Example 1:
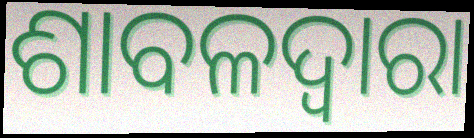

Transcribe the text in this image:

ଶାବଳଦ୍ୱାରା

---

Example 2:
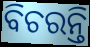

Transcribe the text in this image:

ବିଚରନ୍ତି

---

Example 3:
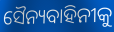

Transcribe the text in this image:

ସୈନ୍ୟବାହିନୀକୁ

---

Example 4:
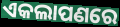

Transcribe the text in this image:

ଏକଲାପଣରେ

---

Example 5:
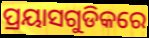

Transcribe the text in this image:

ପ୍ରୟାସଗୁଡିକରେ